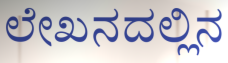
ಲೇಖನದಲ್ಲಿನ